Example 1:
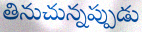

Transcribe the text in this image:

తినుచున్నప్పుడు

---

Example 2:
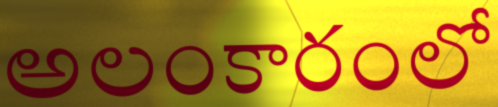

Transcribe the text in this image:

అలంకారంలో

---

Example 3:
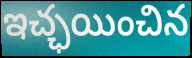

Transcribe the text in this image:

ఇచ్ఛయించిన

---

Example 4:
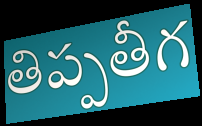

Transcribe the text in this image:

తిప్పతీగ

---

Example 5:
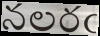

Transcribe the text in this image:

నలరఁ